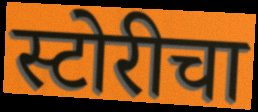
स्टोरीचा